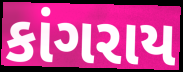
કાંગરાય